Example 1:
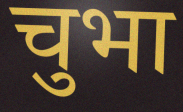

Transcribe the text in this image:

चुभा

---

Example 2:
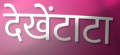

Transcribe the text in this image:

देखेंटाटा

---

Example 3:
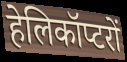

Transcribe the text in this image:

हेलिकॉप्टरों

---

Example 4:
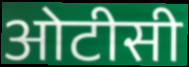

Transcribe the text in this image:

ओटीसी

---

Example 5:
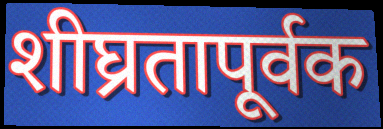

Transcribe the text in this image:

शीघ्रतापूर्वक